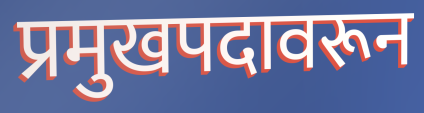
प्रमुखपदावरून